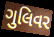
ગુલિવર